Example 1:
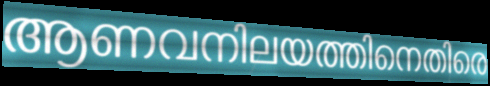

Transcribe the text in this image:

ആണവനിലയത്തിനെതിരെ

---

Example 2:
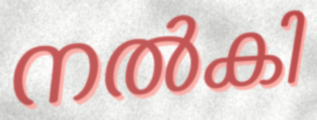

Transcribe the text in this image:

നൽകി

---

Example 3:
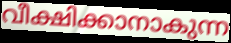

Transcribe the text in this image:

വീക്ഷിക്കാനാകുന്ന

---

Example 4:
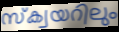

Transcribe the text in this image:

സ്ക്വയറിലും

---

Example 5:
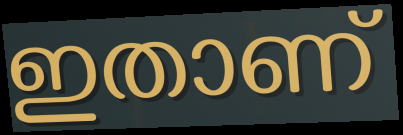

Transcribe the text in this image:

ഇതാണ്